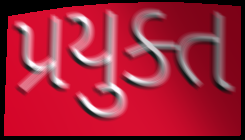
પ્રયુક્ત